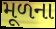
મૂળના